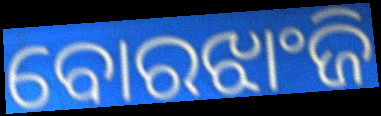
ବୋରଝାଂଜି